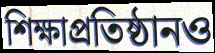
শিক্ষাপ্রতিষ্ঠানও